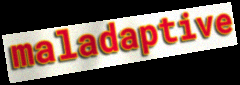
maladaptive